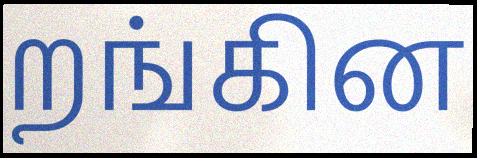
றங்கின